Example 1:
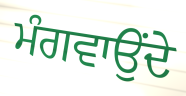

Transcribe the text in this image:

ਮੰਗਵਾਉਂਦੇ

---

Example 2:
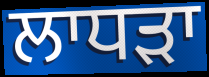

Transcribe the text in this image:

ਲਾਧੜਾ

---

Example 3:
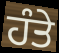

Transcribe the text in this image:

ਹੰਤੇ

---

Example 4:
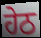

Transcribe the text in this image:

ਹੇਠ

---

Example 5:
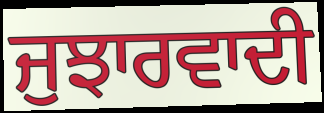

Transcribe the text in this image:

ਜੁਝਾਰਵਾਦੀ